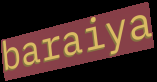
baraiya